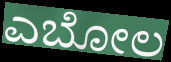
ಎಬೋಲ